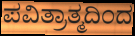
ಪವಿತ್ರಾತ್ಮದಿಂದ